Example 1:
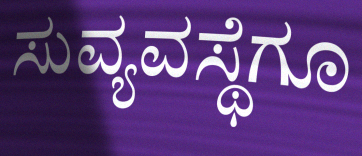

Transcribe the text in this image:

ಸುವ್ಯವಸ್ಥೆಗೂ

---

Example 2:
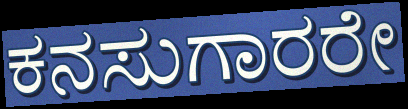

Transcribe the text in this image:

ಕನಸುಗಾರರೇ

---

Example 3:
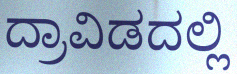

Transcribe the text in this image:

ದ್ರಾವಿಡದಲ್ಲಿ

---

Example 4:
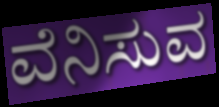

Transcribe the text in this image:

ವೆನಿಸುವ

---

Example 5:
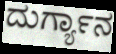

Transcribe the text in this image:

ದುರ್ಗ್ಯಾನ